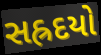
સહ્રદયો